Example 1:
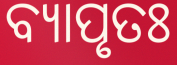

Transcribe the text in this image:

ବ୍ୟାପୃତଃ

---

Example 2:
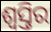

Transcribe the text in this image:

ଶ୍ୱସ୍ତିର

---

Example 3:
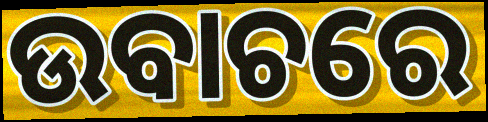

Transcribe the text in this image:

ଉବାଚରେ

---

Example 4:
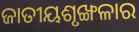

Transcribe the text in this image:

ଜାତୀୟଶୃଙ୍ଖଳାର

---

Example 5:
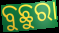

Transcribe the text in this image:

ବୁଛୁରା